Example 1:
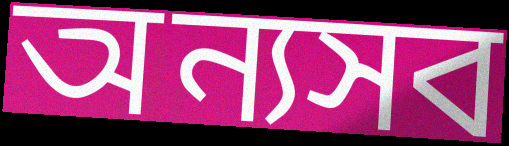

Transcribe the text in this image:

অন্যসব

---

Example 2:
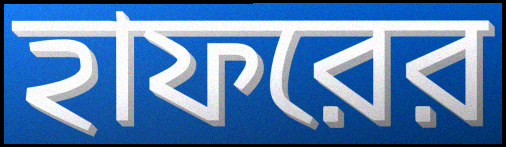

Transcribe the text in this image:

হাফরের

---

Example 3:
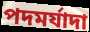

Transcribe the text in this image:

পদমর্যাদা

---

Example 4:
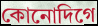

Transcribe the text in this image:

কোনোদিগে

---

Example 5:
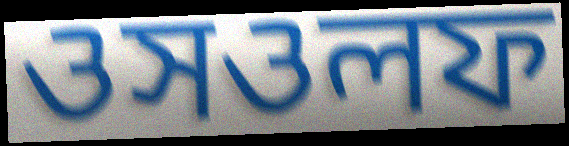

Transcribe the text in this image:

ওসওলফ